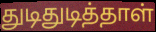
துடிதுடித்தாள்